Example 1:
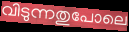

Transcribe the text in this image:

വിടുന്നതുപോലെ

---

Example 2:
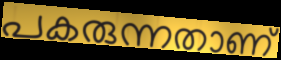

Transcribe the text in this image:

പകരുന്നതാണ്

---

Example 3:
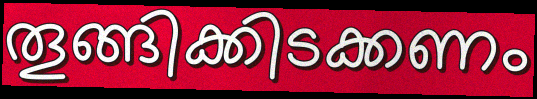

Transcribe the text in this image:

തൂങ്ങിക്കിടക്കണം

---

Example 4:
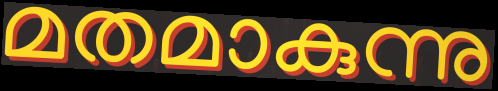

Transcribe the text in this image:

മതമാകുന്നു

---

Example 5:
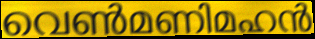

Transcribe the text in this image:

വെൺമണിമഹൻ